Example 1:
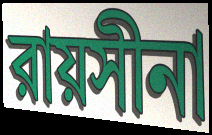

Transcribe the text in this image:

রায়সীনা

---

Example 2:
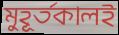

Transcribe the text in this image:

মুহূর্তকালই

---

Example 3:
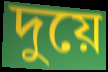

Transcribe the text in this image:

দুয়ে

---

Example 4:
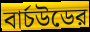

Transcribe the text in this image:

বার্চউডের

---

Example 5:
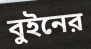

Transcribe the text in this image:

বুইনের